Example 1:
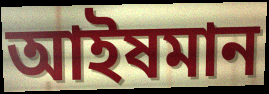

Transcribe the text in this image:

আইষমান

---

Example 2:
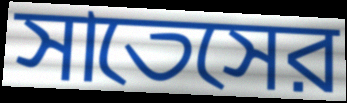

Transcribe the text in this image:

সাতেসের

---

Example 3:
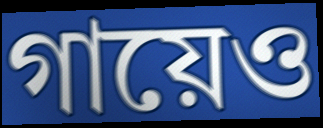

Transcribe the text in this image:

গায়েও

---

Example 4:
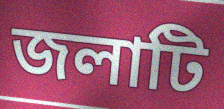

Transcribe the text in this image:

জলাটি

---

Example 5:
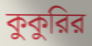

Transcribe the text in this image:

কুকুরির